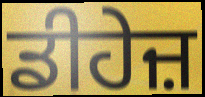
ਡੀਹੇਜ਼